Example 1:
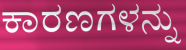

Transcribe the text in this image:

ಕಾರಣಗಳನ್ನು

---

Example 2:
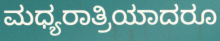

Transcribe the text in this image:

ಮಧ್ಯರಾತ್ರಿಯಾದರೂ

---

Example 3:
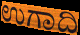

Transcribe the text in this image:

ಉಗಾದಿ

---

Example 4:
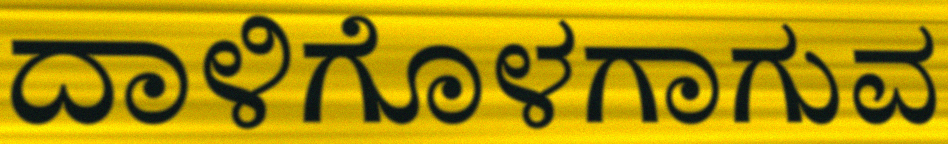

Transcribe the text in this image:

ದಾಳಿಗೊಳಗಾಗುವ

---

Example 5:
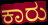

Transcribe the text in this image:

ಕಾರು